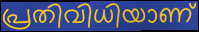
പ്രതിവിധിയാണ്